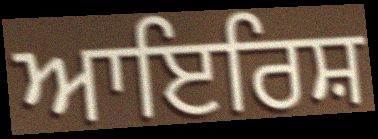
ਆਇਰਿਸ਼